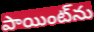
పాయింట్‌ను